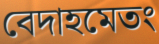
বেদাহমেতং